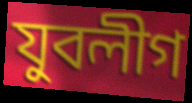
যুবলীগ